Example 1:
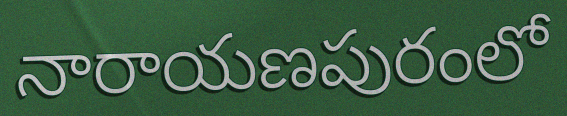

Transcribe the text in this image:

నారాయణపురంలో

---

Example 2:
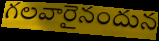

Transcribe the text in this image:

గలవారైనందున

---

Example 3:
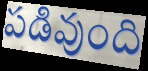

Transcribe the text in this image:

పడివుంది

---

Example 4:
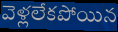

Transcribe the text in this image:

వెళ్లలేకపోయిన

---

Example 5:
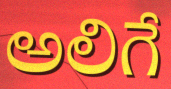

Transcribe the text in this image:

అలిగే